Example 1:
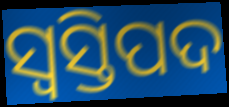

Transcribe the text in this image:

ସ୍ବସ୍ତିପଦ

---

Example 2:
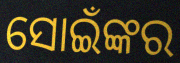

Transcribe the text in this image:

ସୋଇଁଙ୍କର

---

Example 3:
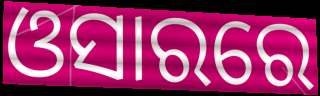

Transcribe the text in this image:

ଓସାରରେ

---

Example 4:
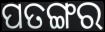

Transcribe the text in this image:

ପତଙ୍ଗର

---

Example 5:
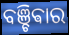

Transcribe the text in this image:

ବଞ୍ଚିଵାର